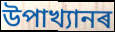
উপাখ্যানৰ